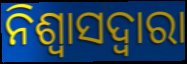
ନିଶ୍ୱାସଦ୍ୱାରା